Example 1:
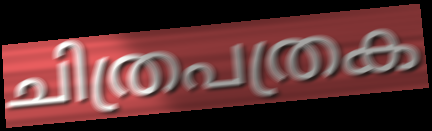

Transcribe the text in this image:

ചിത്രപത്രക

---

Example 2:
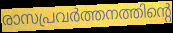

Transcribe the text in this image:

രാസപ്രവർത്തനത്തിന്റെ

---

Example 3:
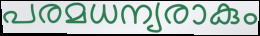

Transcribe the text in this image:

പരമധന്യരാകും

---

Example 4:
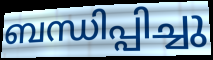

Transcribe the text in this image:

ബന്ധിപ്പിച്ചു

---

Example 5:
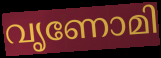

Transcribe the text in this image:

വൃണോമി